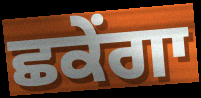
ਛਕੇਂਗਾ